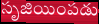
సృజియింపడు